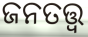
ଜନତତ୍ତ୍ୱ